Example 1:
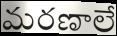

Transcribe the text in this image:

మరణాలే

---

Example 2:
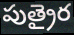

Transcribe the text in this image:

పుత్రైర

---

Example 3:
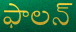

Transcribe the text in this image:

ఫాలన్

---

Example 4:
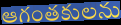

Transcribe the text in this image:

ఆగంతకులను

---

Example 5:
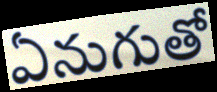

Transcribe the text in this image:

ఏనుగుతో